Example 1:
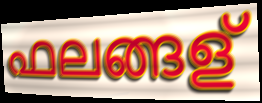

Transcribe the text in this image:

ഫലങ്ങള്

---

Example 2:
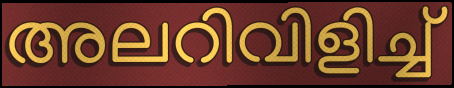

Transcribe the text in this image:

അലറിവിളിച്ച്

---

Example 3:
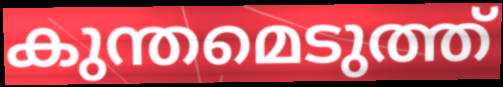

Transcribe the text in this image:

കുന്തമെടുത്ത്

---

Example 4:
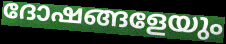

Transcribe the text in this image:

ദോഷങ്ങളേയും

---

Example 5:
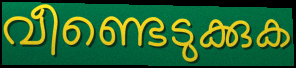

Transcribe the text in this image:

വീണ്ടെടുക്കുക